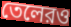
তেলেরও